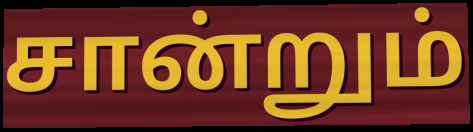
சான்றும்